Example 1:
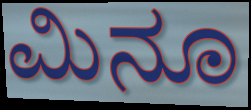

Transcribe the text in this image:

ಮಿನೂ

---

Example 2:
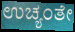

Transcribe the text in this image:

ಉಚ್ಯಂತೇ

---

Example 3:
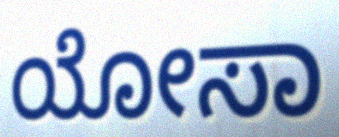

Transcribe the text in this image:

ಯೋಸಾ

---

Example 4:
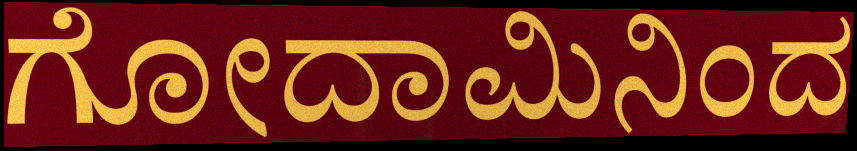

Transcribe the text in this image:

ಗೋದಾಮಿನಿಂದ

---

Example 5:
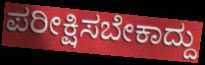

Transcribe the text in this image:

ಪರೀಕ್ಷಿಸಬೇಕಾದ್ದು